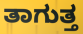
ತಾಗುತ್ತ